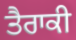
ਤੈਰਾਕੀ